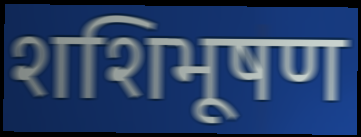
शशिभूषण